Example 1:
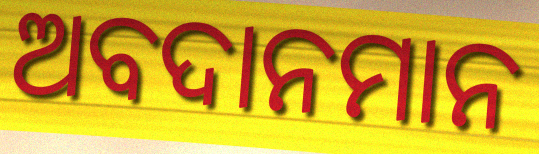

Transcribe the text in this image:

ଅବଦାନମାନ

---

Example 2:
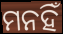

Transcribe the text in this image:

ମନହିଁ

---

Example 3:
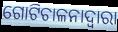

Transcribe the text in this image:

ଗୋଟିଚାଳନାଦ୍ୱାରା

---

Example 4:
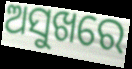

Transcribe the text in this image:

ଅସୁଖରେ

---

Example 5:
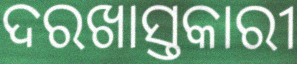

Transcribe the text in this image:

ଦରଖାସ୍ତକାରୀ